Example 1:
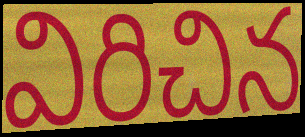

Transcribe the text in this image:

విరిచిన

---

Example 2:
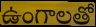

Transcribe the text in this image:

ఉంగాలతో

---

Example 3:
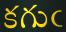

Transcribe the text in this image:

కగుఁ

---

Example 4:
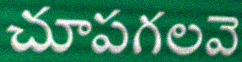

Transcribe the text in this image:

చూపగలవె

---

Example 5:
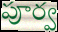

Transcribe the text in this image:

పూర్వ